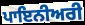
ਪਾਇਨੀਅਰੀ